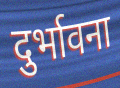
दुर्भावना